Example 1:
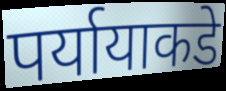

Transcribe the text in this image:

पर्यायाकडे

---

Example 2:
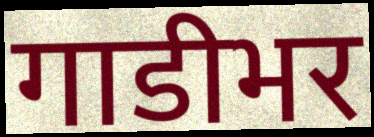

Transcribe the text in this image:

गाडीभर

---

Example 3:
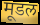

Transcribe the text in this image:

मूडल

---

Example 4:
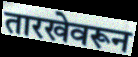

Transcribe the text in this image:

तारखेवरून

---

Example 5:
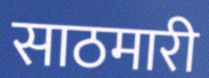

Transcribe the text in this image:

साठमारी